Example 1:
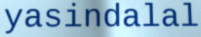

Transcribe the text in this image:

yasindalal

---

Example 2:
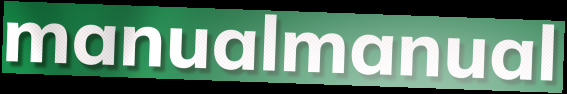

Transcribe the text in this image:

manualmanual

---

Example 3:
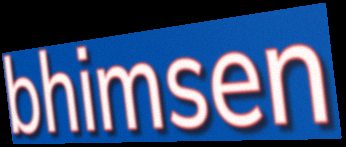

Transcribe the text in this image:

bhimsen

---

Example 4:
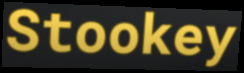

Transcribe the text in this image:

Stookey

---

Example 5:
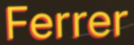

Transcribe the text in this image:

Ferrer